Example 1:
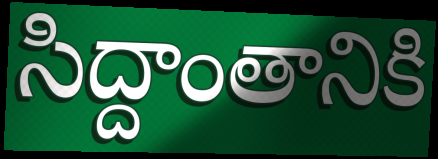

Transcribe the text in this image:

సిద్దాంతానికి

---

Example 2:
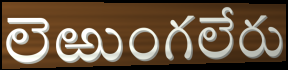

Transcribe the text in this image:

లెఱుంగలేరు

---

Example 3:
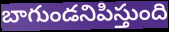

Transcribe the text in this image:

బాగుండనిపిస్తుంది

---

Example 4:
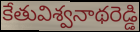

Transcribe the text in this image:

కేతువిశ్వనాథరెడ్డి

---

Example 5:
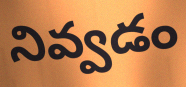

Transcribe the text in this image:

నివ్వడం